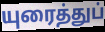
யுரைத்துப்